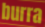
burra